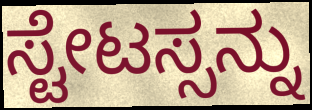
ಸ್ಟೇಟಸ್ಸನ್ನು